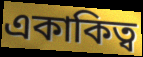
একাকিত্ব